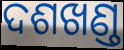
ଦଶଖଣ୍ଡ